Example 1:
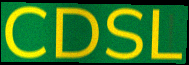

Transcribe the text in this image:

CDSL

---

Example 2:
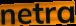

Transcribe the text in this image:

netra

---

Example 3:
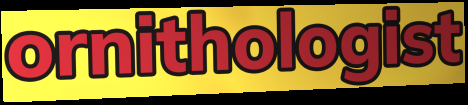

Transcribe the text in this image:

ornithologist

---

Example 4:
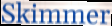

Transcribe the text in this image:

Skimmer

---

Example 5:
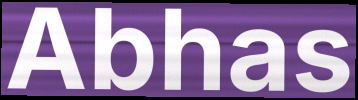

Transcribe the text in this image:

Abhas